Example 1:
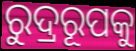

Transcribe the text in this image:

ରୁଦ୍ରରୂପକୁ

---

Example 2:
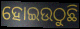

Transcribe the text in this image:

ହୋଇଉଠୁଛି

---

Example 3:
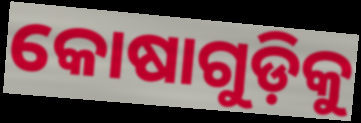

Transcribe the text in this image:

କୋଷାଗୁଡ଼ିକୁ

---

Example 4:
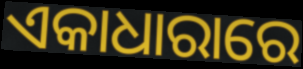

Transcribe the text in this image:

ଏକାଧାରାରେ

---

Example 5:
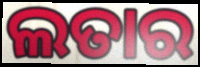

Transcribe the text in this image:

ଲତାର